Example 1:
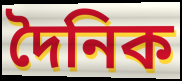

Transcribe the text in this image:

দৈনিক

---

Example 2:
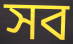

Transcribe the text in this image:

সব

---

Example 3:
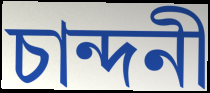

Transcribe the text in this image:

চান্দনী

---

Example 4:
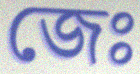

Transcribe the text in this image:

জেঃ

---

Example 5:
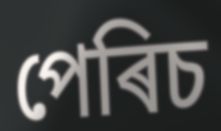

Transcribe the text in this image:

পেৰিচ